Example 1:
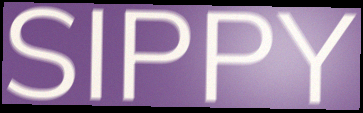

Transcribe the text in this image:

SIPPY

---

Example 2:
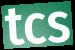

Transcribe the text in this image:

tcs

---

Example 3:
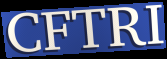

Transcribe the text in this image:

CFTRI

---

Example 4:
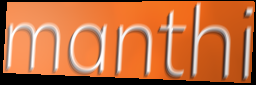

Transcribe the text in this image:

manthi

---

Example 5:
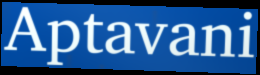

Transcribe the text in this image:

Aptavani